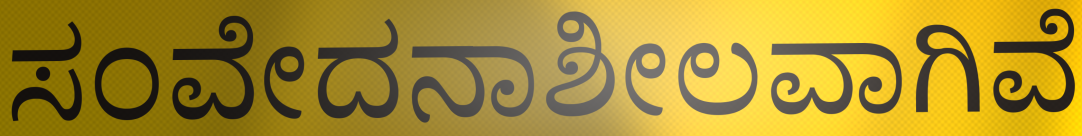
ಸಂವೇದನಾಶೀಲವಾಗಿವೆ